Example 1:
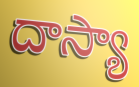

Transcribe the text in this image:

దాస్యా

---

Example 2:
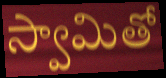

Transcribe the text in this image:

స్వామితో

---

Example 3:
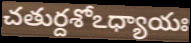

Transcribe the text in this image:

చతుర్దశోఽధ్యాయః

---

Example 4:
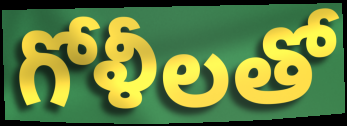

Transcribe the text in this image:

గోళీలతో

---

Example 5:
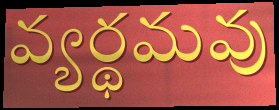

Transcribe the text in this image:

వ్యర్థమవు